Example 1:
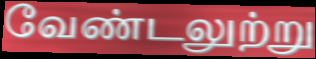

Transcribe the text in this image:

வேண்டலுற்று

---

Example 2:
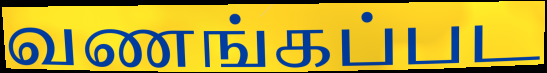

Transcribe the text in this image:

வணங்கப்பட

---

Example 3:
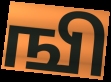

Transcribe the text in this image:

ஙி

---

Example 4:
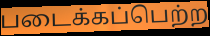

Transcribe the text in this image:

படைக்கப்பெற்ற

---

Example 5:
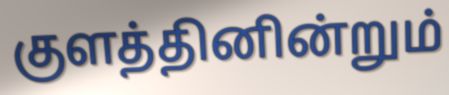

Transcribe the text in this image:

குளத்தினின்றும்